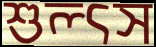
শুল্ৎস